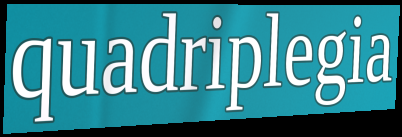
quadriplegia